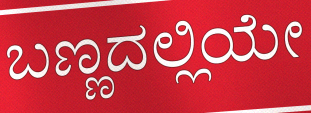
ಬಣ್ಣದಲ್ಲಿಯೇ